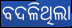
ବଦଳିଥିଲା